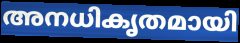
അനധികൃതമായി